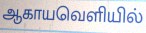
ஆகாயவெளியில்